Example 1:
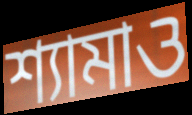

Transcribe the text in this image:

শ্যামাও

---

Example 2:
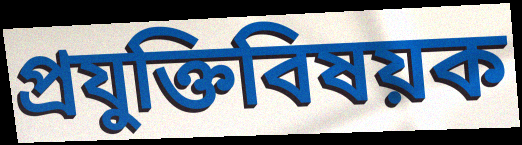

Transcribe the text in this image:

প্রযুক্তিবিষয়ক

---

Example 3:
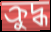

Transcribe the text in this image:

ক্রুদ্ধ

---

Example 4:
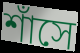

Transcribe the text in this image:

শাঁসে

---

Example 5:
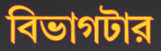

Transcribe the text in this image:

বিভাগটার